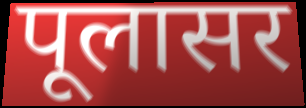
पूलासर